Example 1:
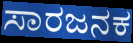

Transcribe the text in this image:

ಸಾರಜನಕ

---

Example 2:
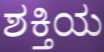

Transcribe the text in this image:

ಶಕ್ತಿಯ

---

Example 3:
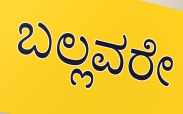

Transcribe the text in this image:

ಬಲ್ಲವರೇ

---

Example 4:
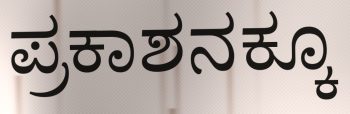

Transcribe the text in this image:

ಪ್ರಕಾಶನಕ್ಕೂ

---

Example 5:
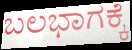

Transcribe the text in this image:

ಬಲಭಾಗಕ್ಕೆ